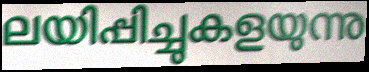
ലയിപ്പിച്ചുകളയുന്നു